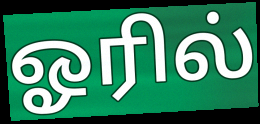
ஓரில்